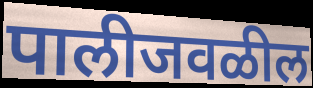
पालीजवळील